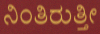
ನಿಂತಿರುತ್ತೀ